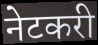
नेटकरी